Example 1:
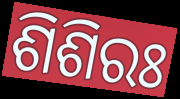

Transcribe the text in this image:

ଶିଶିରଃ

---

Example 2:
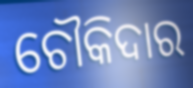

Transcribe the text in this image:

ଚୌକିଦାର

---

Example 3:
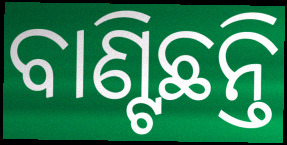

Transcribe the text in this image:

ବାଣ୍ଟିଛନ୍ତି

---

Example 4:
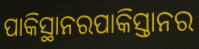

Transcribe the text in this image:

ପାକିସ୍ଥାନରପାକିସ୍ତାନର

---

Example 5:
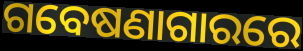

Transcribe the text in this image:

ଗବେଷଣାଗାରରେ